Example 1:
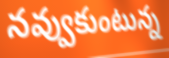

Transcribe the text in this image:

నవ్వుకుంటున్న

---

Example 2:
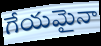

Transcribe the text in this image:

గేయమైనా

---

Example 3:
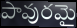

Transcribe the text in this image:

పావురమై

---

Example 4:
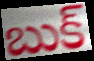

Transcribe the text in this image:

బుక్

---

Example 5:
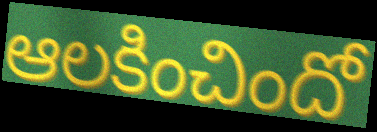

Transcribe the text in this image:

ఆలకించిందో